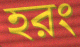
হরং